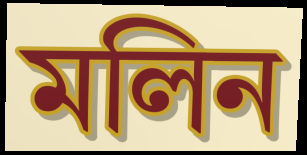
মলিন